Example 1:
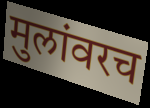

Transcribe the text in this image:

मुलांवरच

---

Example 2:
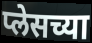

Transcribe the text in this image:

प्लेसच्या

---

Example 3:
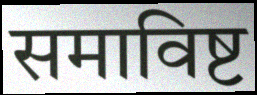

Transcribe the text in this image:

समाविष्ट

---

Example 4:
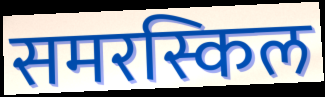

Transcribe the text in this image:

समरस्किल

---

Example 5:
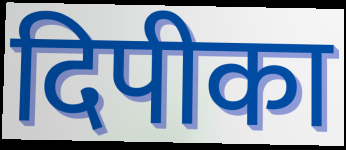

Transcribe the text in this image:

दिपीका